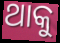
ଥାକୁ